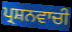
ਪ੍ਰਸ਼ਨਵਾਚੀ